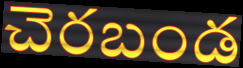
చెరబండ